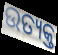
ଉତ୍ୟକ୍ତ